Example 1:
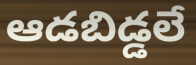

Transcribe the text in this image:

ఆడబిడ్డలే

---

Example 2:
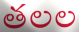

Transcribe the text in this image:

తలల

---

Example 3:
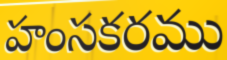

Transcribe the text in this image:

హంసకరము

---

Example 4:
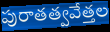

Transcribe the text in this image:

పురాతత్వవేత్తల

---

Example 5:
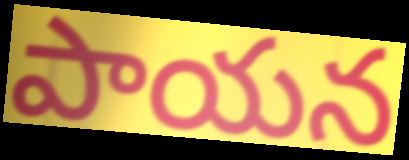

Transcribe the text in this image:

పాయన